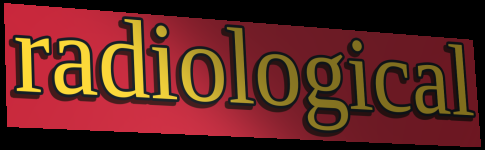
radiological